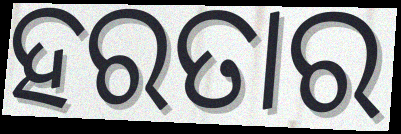
ହରତାର